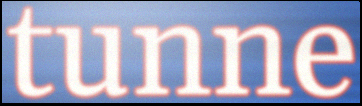
tunne